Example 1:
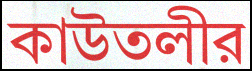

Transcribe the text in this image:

কাউতলীর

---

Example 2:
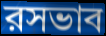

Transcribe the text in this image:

রসভাব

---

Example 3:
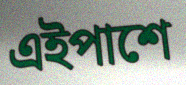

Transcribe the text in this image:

এইপাশে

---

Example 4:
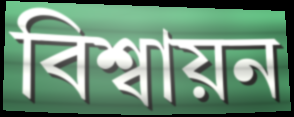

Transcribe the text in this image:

বিশ্বায়ন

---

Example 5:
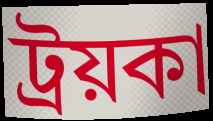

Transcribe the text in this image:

ট্রয়কা